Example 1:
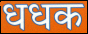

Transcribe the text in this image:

धधक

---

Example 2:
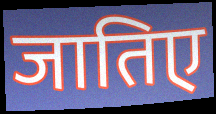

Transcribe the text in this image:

जातिए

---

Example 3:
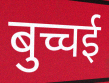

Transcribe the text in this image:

बुच्चई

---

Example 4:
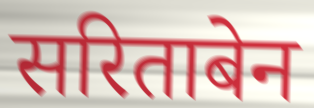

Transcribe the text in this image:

सरिताबेन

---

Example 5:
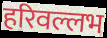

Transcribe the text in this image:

हरिवल्लभ